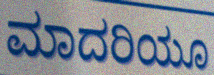
ಮಾದರಿಯೂ